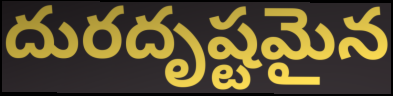
దురదృష్టమైన